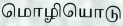
மொழியொடு